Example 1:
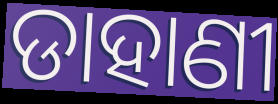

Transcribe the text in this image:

ଡାହାଣୀ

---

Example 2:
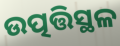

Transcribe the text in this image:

ଉତ୍ପତ୍ତିସ୍ଥଳ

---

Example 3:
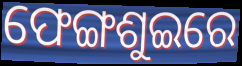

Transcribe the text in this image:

ଫେଙ୍ଗଶୁଇରେ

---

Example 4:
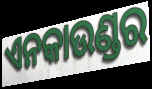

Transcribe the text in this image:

ଏନକାଉଣ୍ଡର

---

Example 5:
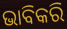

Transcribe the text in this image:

ଭାବିକରି